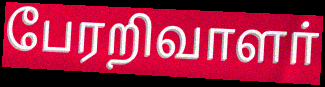
பேரறிவாளர்